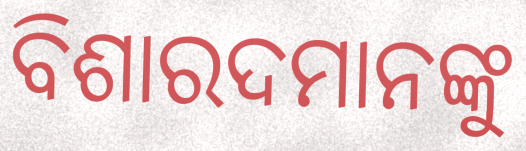
ବିଶାରଦମାନଙ୍କୁ